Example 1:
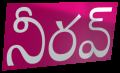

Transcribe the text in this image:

నీరవ్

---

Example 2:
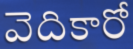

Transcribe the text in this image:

వెదికారో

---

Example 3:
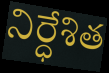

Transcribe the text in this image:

నిర్ధేశిత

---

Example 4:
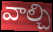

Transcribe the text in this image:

వాల్చి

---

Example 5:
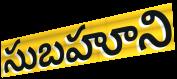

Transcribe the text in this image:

సుబహూని